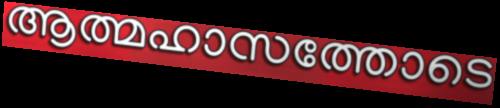
ആത്മഹാസത്തോടെ